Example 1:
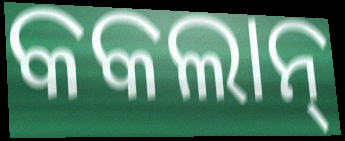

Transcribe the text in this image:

କକଲାନ୍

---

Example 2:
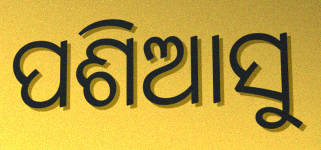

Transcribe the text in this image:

ପଶିଆସୁ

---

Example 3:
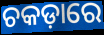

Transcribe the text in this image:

ଚକଡ଼ାରେ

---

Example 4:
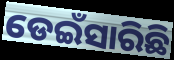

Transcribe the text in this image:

ଡେଇଁସାରିଛି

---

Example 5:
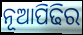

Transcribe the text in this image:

ନୂଆପିଢିର